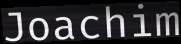
Joachim